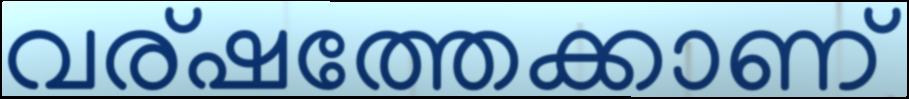
വര്ഷത്തേക്കാണ്